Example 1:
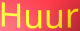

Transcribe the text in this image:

Huur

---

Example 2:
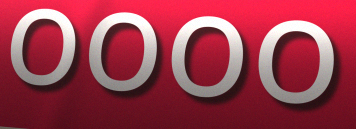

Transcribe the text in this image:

oooo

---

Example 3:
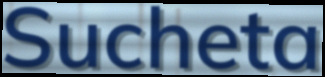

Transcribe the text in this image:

Sucheta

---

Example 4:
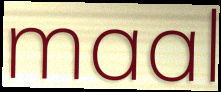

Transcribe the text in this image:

maal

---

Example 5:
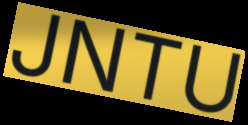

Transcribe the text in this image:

JNTU